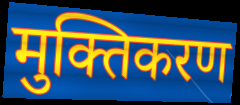
मुक्तिकरण